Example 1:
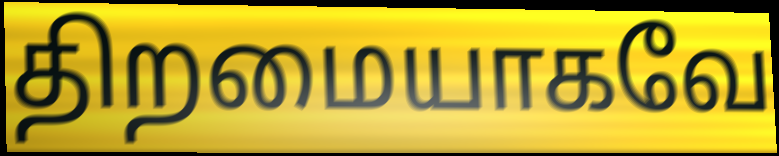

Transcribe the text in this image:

திறமையாகவே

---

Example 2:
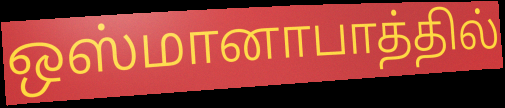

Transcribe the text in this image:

ஒஸ்மானாபாத்தில்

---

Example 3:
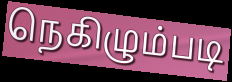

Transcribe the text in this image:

நெகிழும்படி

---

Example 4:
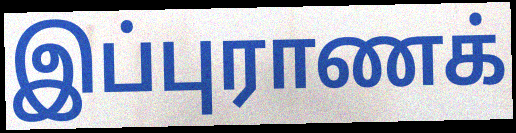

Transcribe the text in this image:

இப்புராணக்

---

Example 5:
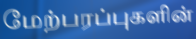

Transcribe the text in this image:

மேற்பரப்புகளின்